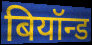
बियॉन्ड